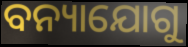
ବନ୍ୟାଯୋଗୁ